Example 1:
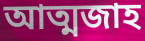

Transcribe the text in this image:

আত্মজাহ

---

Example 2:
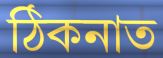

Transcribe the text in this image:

ঠিকনাত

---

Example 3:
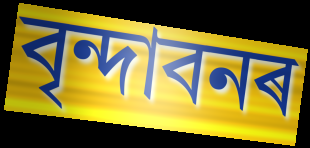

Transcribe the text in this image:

বৃন্দাবনৰ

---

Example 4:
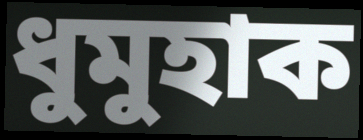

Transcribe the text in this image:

ধুমুহাক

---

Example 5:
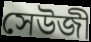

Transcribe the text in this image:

সেউজী